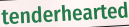
tenderhearted